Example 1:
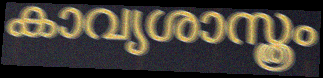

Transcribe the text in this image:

കാവ്യശാസ്ത്രം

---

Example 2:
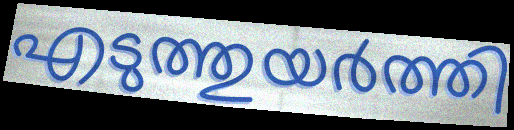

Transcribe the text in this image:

എടുത്തുയർത്തി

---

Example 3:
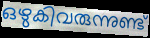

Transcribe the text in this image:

ഒഴുകിവരുന്നുണ്ട്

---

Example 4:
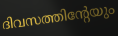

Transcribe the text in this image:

ദിവസത്തിന്റേയും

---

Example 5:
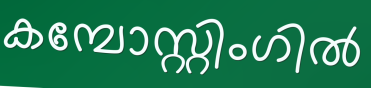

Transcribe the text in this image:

കമ്പോസ്റ്റിംഗിൽ